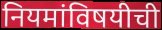
नियमांविषयीची